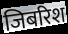
जिबरिश